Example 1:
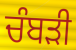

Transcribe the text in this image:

ਚੰਬੜੀ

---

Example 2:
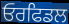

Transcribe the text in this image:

ਓਰਫਿਡਲ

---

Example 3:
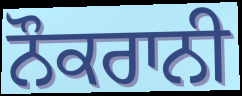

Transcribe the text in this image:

ਨੌਕਰਾਨੀ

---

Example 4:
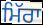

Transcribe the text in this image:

ਮਿੱਰਾ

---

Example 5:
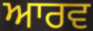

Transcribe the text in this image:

ਆਰਵ